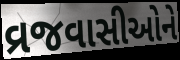
વ્રજવાસીઓને